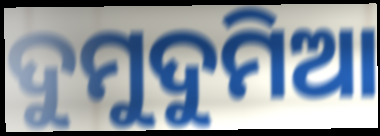
ଦୁମୁଦୁମିଆ